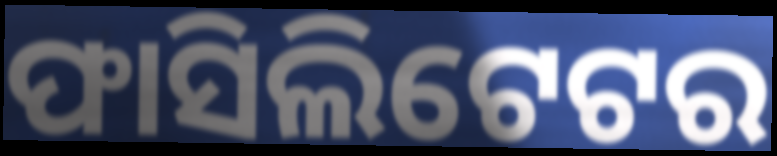
ଫାସିଲିଟେଟର